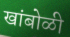
खांबोळी